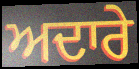
ਅਦਾਰੇ